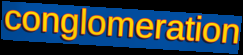
conglomeration